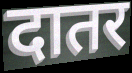
दातर